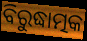
ବିରୁଦ୍ଧାତ୍ମକ